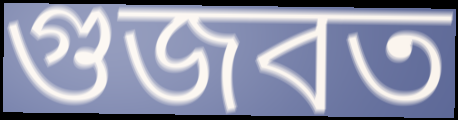
গুজবত